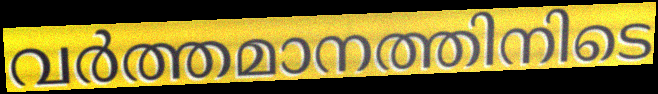
വർത്തമാനത്തിനിടെ